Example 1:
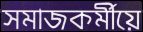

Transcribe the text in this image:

সমাজকৰ্মীয়ে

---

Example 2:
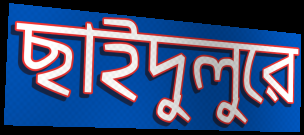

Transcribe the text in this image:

ছাইদুলুৱে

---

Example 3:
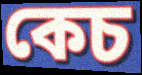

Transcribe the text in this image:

কেচ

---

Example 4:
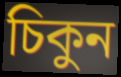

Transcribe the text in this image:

চিকুন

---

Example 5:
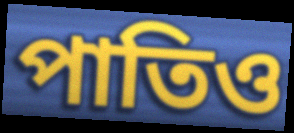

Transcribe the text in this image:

পাতিও